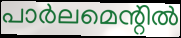
പാർലമെന്റിൽ